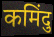
कमिंदु